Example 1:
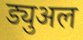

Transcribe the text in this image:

ड्युअल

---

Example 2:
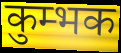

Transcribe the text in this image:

कुम्भक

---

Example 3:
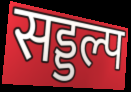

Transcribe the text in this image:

सड्डल्प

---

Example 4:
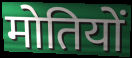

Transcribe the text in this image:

मोतियों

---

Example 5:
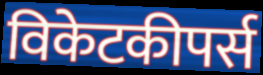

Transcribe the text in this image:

विकेटकीपर्स